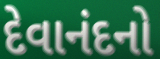
દેવાનંદનો